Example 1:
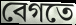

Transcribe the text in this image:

বেগতে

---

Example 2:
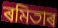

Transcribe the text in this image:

ৰমিতাৰ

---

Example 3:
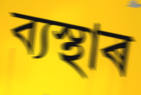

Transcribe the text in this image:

ব্যস্থাৰ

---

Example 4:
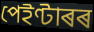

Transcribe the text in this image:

পেইণ্টাৰৰ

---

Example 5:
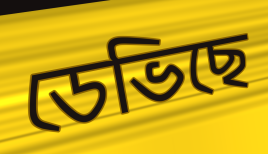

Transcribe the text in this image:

ডেভিছে